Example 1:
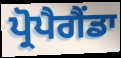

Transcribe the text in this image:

ਪ੍ਰੋਪੈਗੈਂਡਾ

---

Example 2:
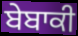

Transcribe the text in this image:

ਬੇਬਾਕੀ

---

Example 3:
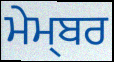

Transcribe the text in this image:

ਮੇਮ੍ਬਰ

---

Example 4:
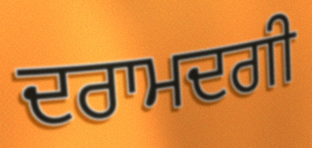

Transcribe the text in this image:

ਦਰਾਮਦਗੀ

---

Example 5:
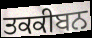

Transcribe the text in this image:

ਤਕਕੀਬਨ